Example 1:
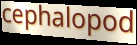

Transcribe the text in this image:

cephalopod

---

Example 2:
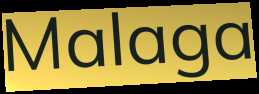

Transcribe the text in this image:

Malaga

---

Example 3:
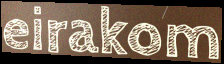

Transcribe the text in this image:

eirakom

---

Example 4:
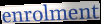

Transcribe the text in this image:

enrolment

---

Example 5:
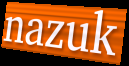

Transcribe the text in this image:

nazuk